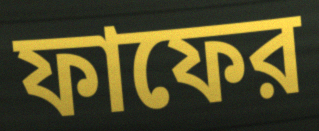
ফাফের